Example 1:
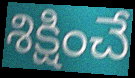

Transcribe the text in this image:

శిక్షించే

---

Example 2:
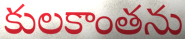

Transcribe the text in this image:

కులకాంతను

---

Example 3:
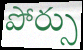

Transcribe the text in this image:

పోర్సు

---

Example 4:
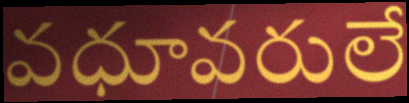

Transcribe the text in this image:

వధూవరులే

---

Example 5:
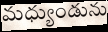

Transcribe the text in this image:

మధ్యుండును